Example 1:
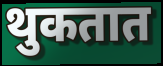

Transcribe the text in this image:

थुकतात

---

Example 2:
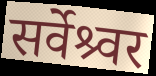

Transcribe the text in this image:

सर्वेश्र्वर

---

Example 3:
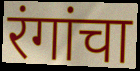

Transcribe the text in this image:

रंगांचा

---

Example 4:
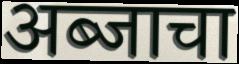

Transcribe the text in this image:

अब्जाचा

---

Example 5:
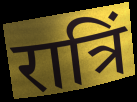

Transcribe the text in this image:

रात्रिं